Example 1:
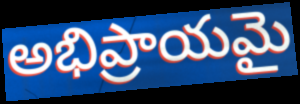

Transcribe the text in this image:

అభిప్రాయమై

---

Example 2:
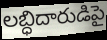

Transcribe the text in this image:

లబ్ధిదారుడిపై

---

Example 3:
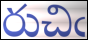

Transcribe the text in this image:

రుచిఁ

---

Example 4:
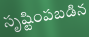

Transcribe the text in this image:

సృష్టింపబడిన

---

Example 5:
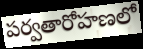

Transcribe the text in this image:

పర్వతారోహణలో